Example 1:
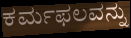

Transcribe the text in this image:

ಕರ್ಮಫಲವನ್ನು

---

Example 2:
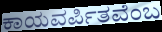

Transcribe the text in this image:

ಕಾಯವರ್ಪಿತವೆಂಬ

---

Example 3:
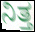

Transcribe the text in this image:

ನಿತ್ತ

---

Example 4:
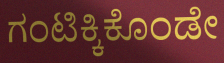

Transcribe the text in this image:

ಗಂಟಿಕ್ಕಿಕೊಂಡೇ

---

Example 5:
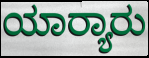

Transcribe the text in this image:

ಯಾರ್‍ಯಾರು